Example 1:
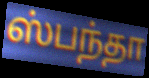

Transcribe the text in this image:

ஸ்பந்தா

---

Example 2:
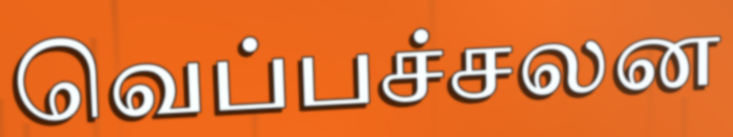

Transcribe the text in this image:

வெப்பச்சலன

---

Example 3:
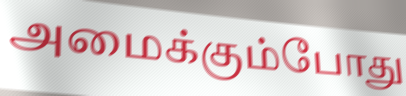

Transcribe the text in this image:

அமைக்கும்போது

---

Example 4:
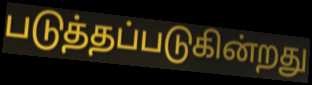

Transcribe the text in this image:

படுத்தப்படுகின்றது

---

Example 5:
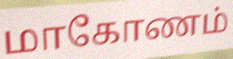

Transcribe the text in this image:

மாகோணம்